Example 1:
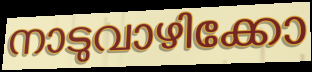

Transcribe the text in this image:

നാടുവാഴിക്കോ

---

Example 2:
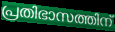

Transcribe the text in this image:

പ്രതിഭാസത്തിന്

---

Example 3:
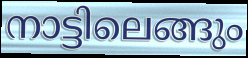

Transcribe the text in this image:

നാട്ടിലെങ്ങും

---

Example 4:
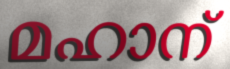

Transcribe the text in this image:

മഹാന്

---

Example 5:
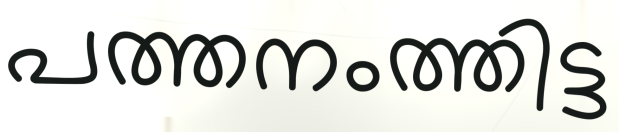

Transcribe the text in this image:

പത്തനംത്തിട്ട